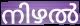
നിഴൽ